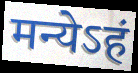
मन्येऽहं